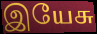
இயேசு